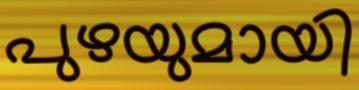
പുഴയുമായി